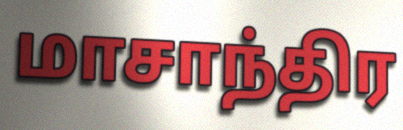
மாசாந்திர